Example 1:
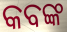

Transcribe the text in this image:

କବଙ୍କ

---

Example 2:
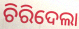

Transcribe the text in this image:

ଚିରିଦେଲା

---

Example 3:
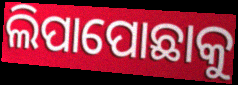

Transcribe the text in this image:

ଲିପାପୋଛାକୁ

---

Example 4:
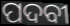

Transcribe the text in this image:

ପଦବୀ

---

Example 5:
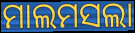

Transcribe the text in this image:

ମାଲମସଲା